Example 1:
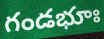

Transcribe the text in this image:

గండభూః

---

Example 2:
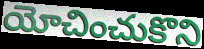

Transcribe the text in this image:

యోచించుకొని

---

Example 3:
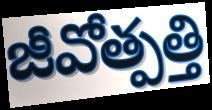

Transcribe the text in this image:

జీవోత్పత్తి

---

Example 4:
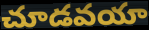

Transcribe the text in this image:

చూడవయా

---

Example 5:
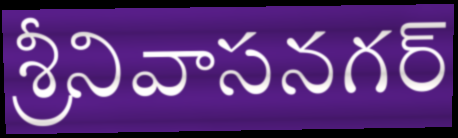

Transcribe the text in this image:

శ్రీనివాసనగర్